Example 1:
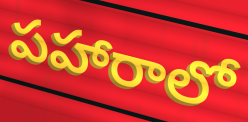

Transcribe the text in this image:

పహారాలో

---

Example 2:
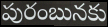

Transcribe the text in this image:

పురంబునకు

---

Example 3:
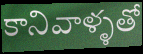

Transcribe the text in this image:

కానివాళ్ళతో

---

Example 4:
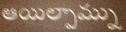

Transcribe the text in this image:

ఆయిల్పామ్ను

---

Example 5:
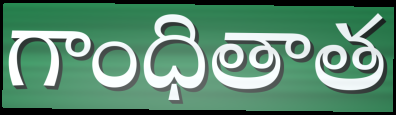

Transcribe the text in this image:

గాంధితాత